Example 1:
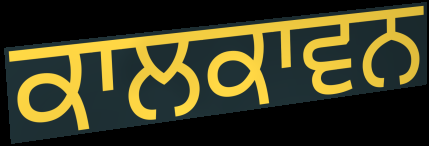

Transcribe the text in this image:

ਕਾਲਕਾਵਨ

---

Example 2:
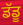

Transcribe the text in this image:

ਡੱਡੂ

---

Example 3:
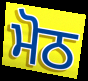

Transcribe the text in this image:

ਮੋਠ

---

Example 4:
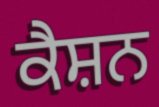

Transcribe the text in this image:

ਕੈਸ਼ਨ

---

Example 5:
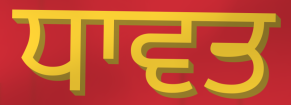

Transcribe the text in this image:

ਧਾਵਤ